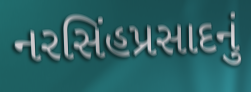
નરસિંહપ્રસાદનું